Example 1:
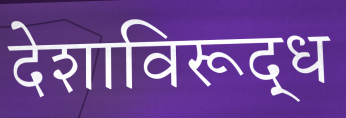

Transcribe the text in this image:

देशाविरूद्ध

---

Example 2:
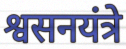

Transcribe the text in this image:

श्वसनयंत्रे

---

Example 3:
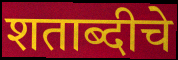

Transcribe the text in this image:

शताब्दीचे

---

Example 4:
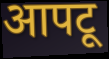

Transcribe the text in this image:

आपटू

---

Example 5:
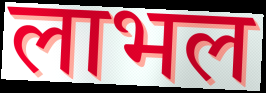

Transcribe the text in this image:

लाभल